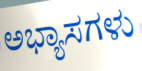
ಅಭ್ಯಾಸಗಳು